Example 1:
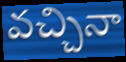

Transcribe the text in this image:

వచ్చినా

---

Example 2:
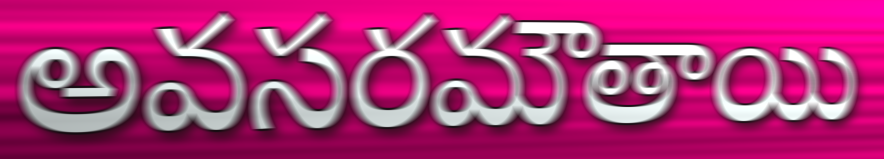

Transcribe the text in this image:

అవసరమౌతాయి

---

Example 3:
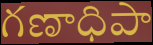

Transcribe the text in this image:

గణాధిపా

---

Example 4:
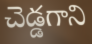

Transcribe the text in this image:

చెడ్డగాని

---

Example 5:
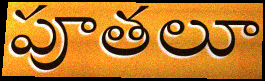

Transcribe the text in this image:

పూతలూ